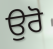
ਉਰੋ